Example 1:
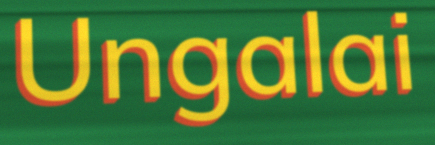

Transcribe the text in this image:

Ungalai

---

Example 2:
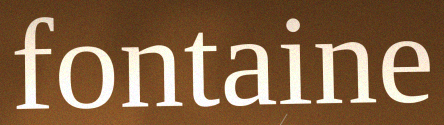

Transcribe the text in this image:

fontaine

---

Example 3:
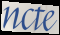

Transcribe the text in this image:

ncte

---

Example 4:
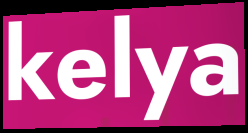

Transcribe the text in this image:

kelya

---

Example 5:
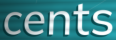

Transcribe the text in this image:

cents